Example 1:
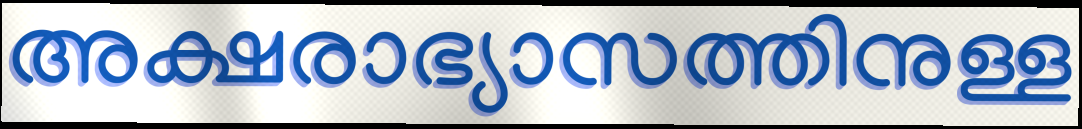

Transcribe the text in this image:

അക്ഷരാഭ്യാസത്തിനുള്ള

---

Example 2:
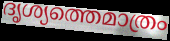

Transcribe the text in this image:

ദൃശ്യത്തെമാത്രം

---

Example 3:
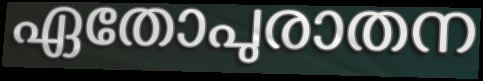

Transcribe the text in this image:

ഏതോപുരാതന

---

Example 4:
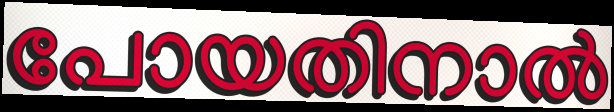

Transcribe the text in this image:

പോയതിനാൽ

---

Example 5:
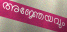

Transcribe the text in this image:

അജ്ഞേയവും